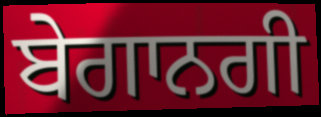
ਬੇਗਾਨਗੀ